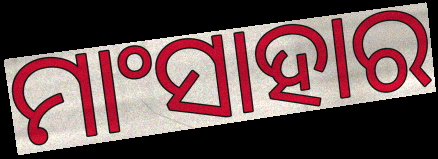
ମାଂସାହାର